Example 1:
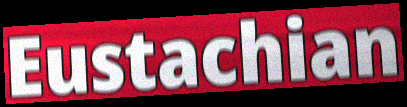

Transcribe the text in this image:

Eustachian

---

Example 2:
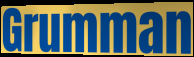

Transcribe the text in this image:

Grumman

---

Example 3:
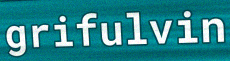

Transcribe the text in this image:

grifulvin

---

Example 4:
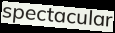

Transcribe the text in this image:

spectacular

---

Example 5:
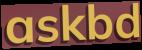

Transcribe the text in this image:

askbd